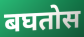
बघतोस